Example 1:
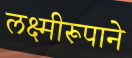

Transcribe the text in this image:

लक्ष्मीरूपाने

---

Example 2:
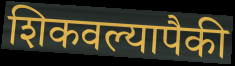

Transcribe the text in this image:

शिकवल्यापैकी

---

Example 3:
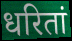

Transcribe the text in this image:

धरितां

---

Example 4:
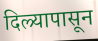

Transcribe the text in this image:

दिल्यापासून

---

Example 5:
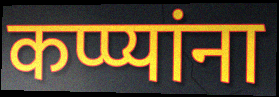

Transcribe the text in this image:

कप्प्यांना